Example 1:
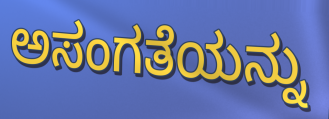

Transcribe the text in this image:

ಅಸಂಗತೆಯನ್ನು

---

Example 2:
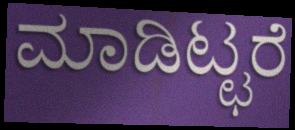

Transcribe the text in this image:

ಮಾಡಿಟ್ಟರೆ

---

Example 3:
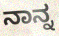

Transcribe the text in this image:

ನಾನ್ನ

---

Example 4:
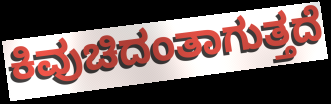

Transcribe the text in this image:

ಕಿವುಚಿದಂತಾಗುತ್ತದೆ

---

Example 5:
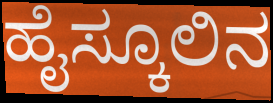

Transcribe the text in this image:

ಹೈಸ್ಕೂಲಿನ